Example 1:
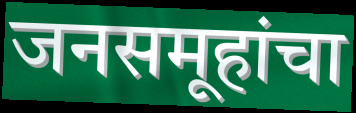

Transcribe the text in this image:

जनसमूहांचा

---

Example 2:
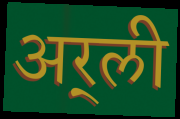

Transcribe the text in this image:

अर्ली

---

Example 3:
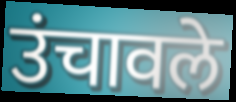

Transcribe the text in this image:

उंचावले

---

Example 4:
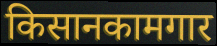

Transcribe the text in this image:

किसानकामगार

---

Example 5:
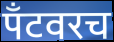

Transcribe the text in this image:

पँटवरच